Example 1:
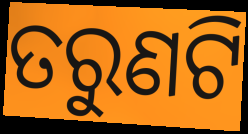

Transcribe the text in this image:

ତରୁଣଟି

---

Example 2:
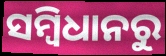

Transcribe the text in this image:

ସମ୍ବିଧାନରୁ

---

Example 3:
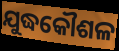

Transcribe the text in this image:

ଯୁଦ୍ଧକୌଶଳ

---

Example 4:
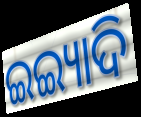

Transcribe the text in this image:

ଇଇ୍ୟାଦି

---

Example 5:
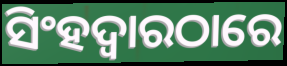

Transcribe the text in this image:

ସିଂହଦ୍ୱାରଠାରେ